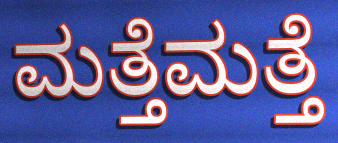
ಮತ್ತೆಮತ್ತೆ